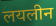
लयलीन